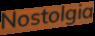
Nostolgia